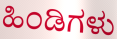
ಹಿಂಡಿಗಳು